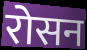
रोसन